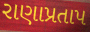
રાણાપ્રતાપ